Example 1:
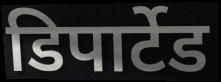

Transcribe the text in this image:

डिपार्टेड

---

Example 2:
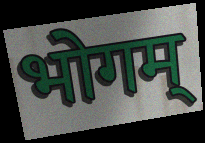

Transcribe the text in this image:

भोगम्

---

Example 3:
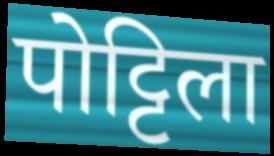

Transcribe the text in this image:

पोट्टिला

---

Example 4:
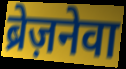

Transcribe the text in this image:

ब्रेज़नेवा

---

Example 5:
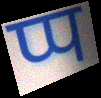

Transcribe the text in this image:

प्प